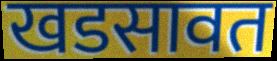
खडसावत